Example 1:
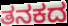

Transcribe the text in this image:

ತನಕದ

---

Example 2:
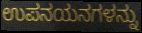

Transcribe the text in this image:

ಉಪನಯನಗಳನ್ನು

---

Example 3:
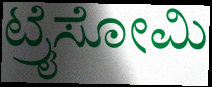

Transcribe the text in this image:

ಟ್ರೈಸೋಮಿ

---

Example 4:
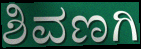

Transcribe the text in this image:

ಶಿವಣಗಿ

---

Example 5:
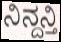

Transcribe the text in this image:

ನಿನ್ದನ್ತಿ